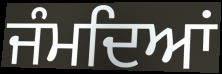
ਜੰਮਦਿਆਂ